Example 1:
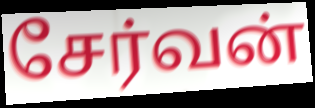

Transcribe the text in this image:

சேர்வன்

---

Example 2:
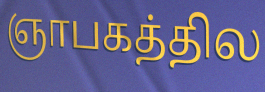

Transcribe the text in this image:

ஞாபகத்தில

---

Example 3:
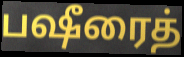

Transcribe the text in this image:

பஷீரைத்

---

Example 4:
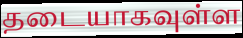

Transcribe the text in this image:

தடையாகவுள்ள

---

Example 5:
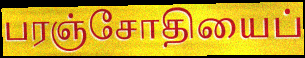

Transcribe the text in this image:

பரஞ்சோதியைப்